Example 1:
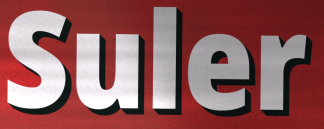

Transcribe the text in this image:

Suler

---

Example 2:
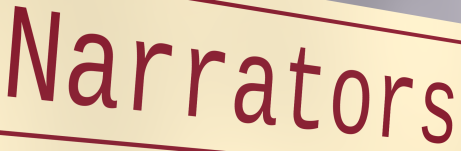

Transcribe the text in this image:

Narrators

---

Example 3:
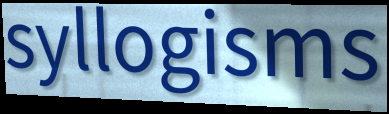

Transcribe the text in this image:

syllogisms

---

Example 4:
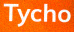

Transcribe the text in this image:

Tycho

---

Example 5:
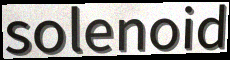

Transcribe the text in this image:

solenoid